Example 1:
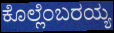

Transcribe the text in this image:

ಕೊಲ್ಲೆಂಬರಯ್ಯ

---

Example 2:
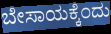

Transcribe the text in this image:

ಬೇಸಾಯಕ್ಕೆಂದು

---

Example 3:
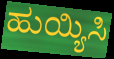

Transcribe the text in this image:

ಹುಯ್ಯಿಸಿ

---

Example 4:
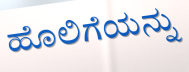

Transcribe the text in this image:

ಹೊಲಿಗೆಯನ್ನು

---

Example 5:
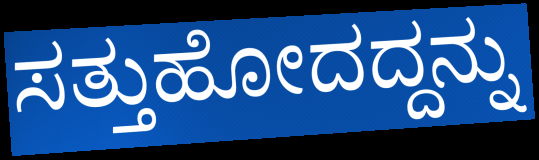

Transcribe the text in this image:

ಸತ್ತುಹೋದದ್ದನ್ನು